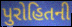
પુરોહિતની